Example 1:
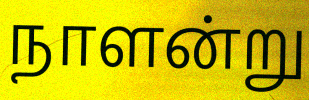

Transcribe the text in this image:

நாளன்று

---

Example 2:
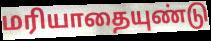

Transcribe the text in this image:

மரியாதையுண்டு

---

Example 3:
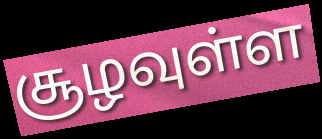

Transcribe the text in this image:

சூழவுள்ள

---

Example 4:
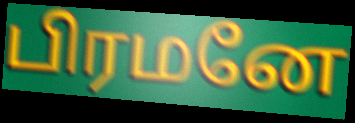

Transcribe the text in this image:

பிரமனே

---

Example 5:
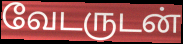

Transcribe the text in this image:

வேடருடன்